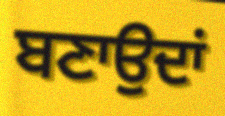
ਬਣਾਉਦਾਂ